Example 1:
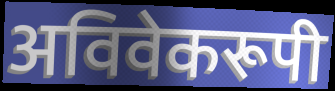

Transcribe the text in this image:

अविवेकरूपी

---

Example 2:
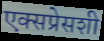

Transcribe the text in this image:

एक्सप्रेसशी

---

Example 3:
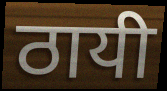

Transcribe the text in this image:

ठायी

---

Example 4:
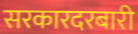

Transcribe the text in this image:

सरकारदरबारी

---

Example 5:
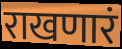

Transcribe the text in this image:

राखणारं